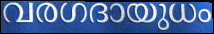
വരഗദായുധം